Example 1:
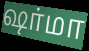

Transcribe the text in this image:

ஷர்மா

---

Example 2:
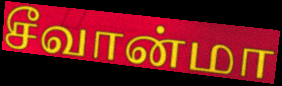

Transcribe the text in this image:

சீவான்மா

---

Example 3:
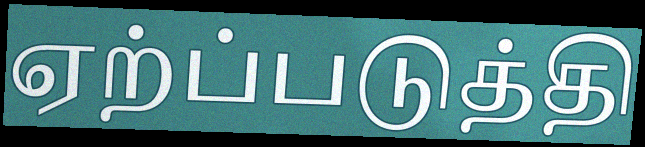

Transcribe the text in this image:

ஏற்ப்படுத்தி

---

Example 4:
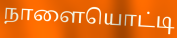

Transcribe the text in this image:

நாளையொட்டி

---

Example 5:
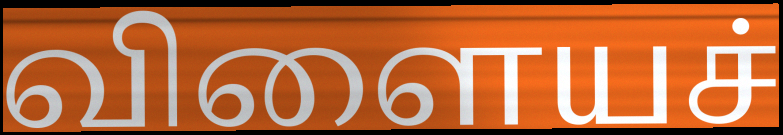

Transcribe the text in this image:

விளையச்